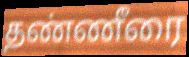
தண்ணீரை